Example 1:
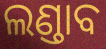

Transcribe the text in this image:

ଲଣ୍ଡାବ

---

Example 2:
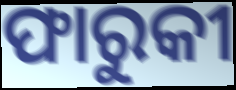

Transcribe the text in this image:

ଫାରୁକୀ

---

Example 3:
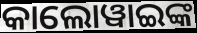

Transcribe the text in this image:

କାଲୋୱାଇଙ୍କ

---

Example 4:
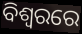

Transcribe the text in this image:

ବିଶ୍ବରରେ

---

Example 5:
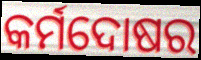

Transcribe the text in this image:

କର୍ମଦୋଷର